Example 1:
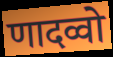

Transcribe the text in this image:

णादव्वो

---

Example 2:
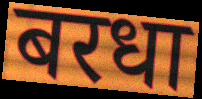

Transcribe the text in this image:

बरधा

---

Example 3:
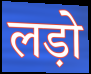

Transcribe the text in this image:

लड़ो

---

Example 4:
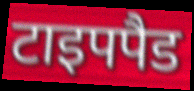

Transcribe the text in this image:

टाइपपैड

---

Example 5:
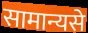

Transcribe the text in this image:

सामान्यसे